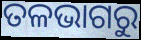
ତଳଭାଗରୁ